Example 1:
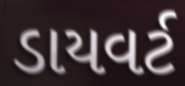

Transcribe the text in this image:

ડાયવર્ટ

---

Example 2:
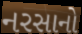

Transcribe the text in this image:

નરસાનો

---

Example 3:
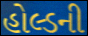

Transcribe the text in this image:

હોલ્ડની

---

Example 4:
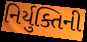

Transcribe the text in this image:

નિર્યુક્તિની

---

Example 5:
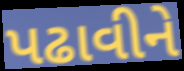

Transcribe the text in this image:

પઢાવીને